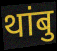
थांबु